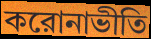
করোনাভীতি